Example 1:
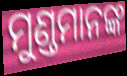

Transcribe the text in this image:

ମୁଣ୍ଡମାନଙ୍କ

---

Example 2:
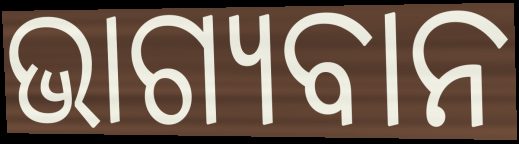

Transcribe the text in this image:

ଭାଗ୍ୟବାନ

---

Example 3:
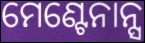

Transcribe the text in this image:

ମେଣ୍ଟେନାନ୍ସ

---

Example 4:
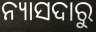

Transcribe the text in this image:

ନ୍ୟାସଦାରୁ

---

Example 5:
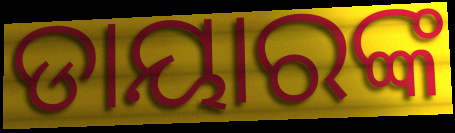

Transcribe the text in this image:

ଡାୟାରଙ୍କ